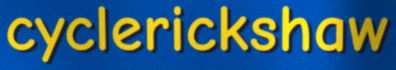
cyclerickshaw